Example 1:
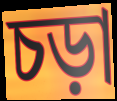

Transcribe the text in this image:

চড়া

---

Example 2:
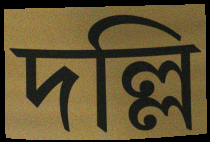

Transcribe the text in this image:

দল্লি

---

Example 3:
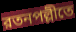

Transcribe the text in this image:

রতনপল্লীতে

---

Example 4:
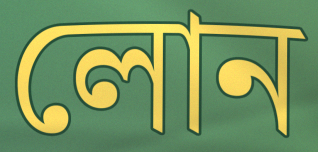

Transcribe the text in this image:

লোন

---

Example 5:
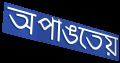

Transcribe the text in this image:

অপাঙতেয়